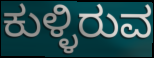
ಕುಳ್ಳಿರುವ